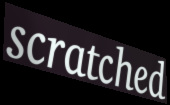
scratched